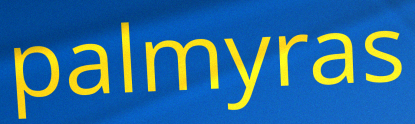
palmyras